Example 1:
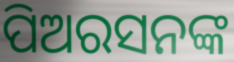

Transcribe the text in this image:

ପିଅରସନଙ୍କ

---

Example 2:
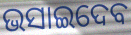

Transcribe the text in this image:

ଭସାଇଦେବ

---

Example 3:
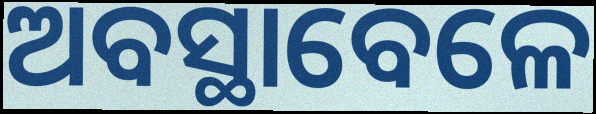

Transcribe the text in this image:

ଅବସ୍ଥାବେଳେ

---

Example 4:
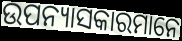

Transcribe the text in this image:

ଉପନ୍ୟାସକାରମାନେ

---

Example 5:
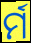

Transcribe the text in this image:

ର୍ମ